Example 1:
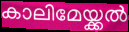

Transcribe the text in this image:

കാലിമേയ്ക്കൽ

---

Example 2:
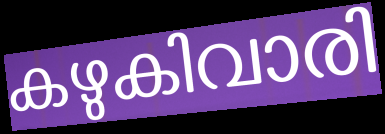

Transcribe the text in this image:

കഴുകിവാരി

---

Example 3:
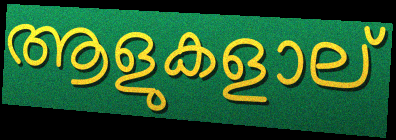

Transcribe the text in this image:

ആളുകളാല്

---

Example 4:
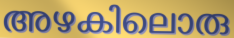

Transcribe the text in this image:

അഴകിലൊരു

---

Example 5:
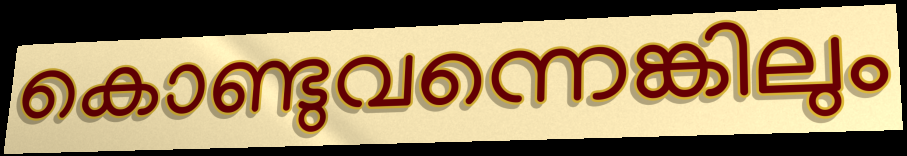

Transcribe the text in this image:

കൊണ്ടുവന്നെങ്കിലും